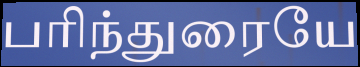
பரிந்துரையே